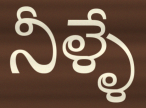
నీళ్ళే